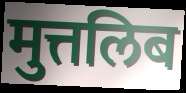
मुत्तलिब